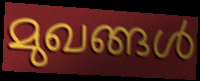
മുഖങ്ങൾ